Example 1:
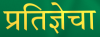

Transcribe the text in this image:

प्रतिज्ञेचा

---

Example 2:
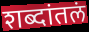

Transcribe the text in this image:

शब्दांतलं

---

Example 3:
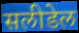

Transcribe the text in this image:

सलीडेल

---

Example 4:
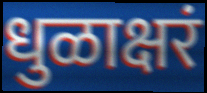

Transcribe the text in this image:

धुळाक्षरं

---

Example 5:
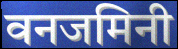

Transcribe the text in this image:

वनजमिनी